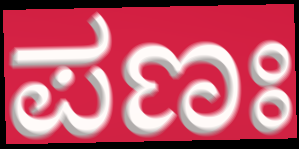
ಪಣಃ